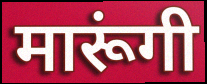
मारूंगी